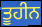
ਤੂਹੀਨ